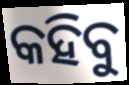
କହିବୁ